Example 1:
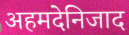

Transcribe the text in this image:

अहमदेनिजाद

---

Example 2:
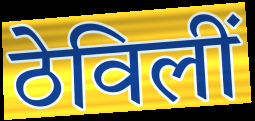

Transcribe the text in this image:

ठेविलीं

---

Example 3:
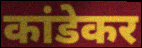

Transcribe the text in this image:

कांडेकर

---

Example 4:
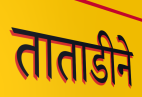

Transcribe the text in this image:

ताताडीने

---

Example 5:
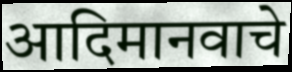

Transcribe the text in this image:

आदिमानवाचे